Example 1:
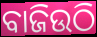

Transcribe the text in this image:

ବାଜିଉଠି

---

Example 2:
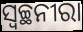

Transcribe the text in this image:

ସ୍ୱଚ୍ଛନୀରା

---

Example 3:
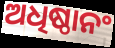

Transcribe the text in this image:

ଅଧିଷ୍ଠାନଂ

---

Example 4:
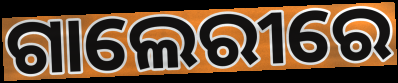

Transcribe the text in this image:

ଗାଲେରୀରେ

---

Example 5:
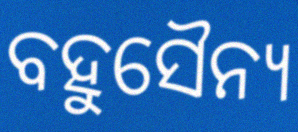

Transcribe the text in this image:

ବହୁସୈନ୍ୟ